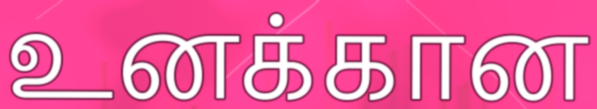
உனக்கான